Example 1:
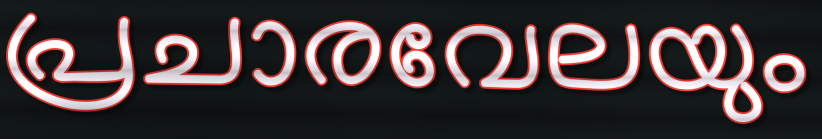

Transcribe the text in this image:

പ്രചാരവേലയും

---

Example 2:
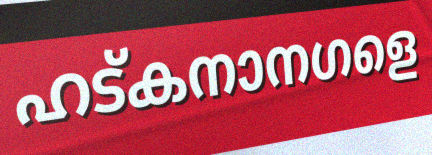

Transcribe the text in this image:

ഹട്കനാനഗളെ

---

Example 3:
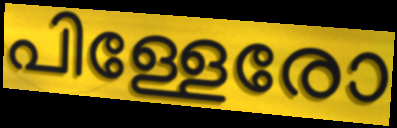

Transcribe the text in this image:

പിള്ളേരോ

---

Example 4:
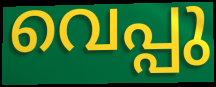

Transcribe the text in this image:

വെപ്പു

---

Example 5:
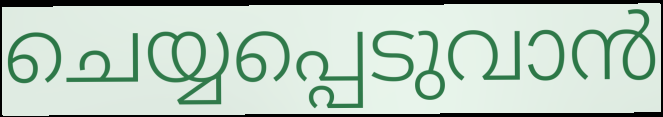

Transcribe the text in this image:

ചെയ്യപ്പെടുവാൻ